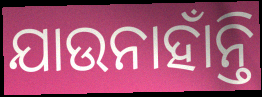
ଯାଉନାହାଁନ୍ତି